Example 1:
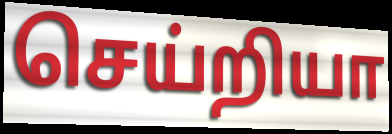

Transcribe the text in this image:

செய்றியா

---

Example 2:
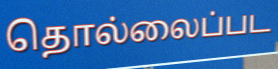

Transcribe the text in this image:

தொல்லைப்பட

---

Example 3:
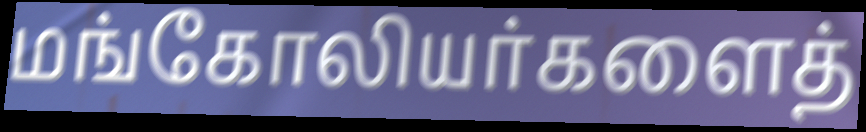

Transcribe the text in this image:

மங்கோலியர்களைத்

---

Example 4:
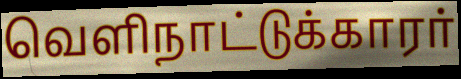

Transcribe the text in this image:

வெளிநாட்டுக்காரர்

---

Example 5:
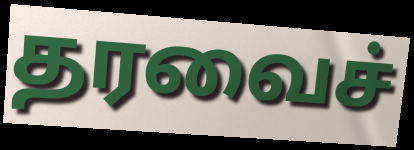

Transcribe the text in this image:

தரவைச்